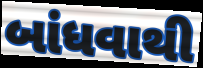
બાંધવાથી